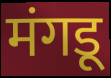
मंगडू